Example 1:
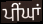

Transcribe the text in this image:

ਪੀਂਘਾਂ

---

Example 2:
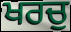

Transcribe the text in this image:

ਖਰਚੁ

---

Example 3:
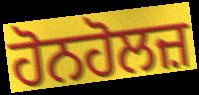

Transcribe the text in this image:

ਹੋਨਹੋਲਜ਼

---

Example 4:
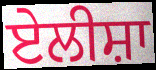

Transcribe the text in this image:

ਏਲੀਸ਼ਾ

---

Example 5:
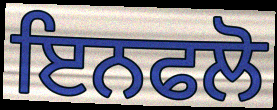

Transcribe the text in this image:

ਇਨਫਲੋ